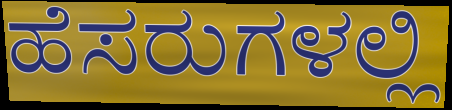
ಹೆಸರುಗಳಲ್ಲಿ